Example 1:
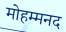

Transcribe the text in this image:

मोहम्मनद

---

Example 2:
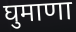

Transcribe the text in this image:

घुमाणा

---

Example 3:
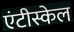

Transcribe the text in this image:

एंटीस्केल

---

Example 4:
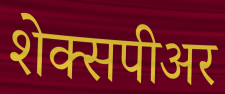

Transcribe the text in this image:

शेक्सपीअर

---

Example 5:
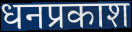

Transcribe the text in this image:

धनप्रकाश